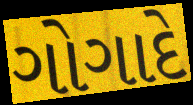
ગોગાદે